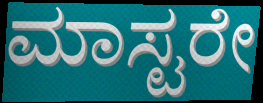
ಮಾಸ್ಟರೇ